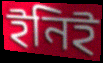
ইনিই